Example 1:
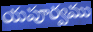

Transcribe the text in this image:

యపూర్వము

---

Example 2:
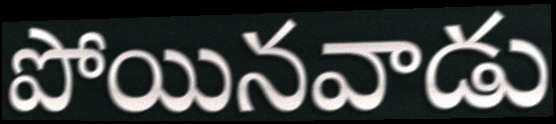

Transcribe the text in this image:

పోయినవాడు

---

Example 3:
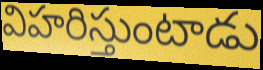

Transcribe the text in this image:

విహరిస్తుంటాడు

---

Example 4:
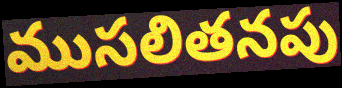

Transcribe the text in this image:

ముసలితనపు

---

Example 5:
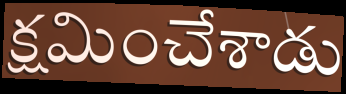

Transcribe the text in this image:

క్షమించేశాడు